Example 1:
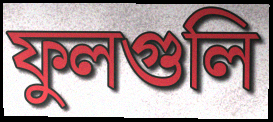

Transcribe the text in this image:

ফুলগুলি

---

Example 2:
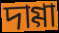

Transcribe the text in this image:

দাগ্গা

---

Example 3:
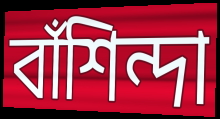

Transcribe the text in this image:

বাঁশিন্দা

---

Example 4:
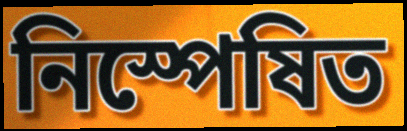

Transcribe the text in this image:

নিস্পেষিত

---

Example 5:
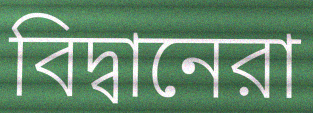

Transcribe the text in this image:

বিদ্বানেরা